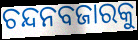
ଚନ୍ଦନବଜାରକୁ